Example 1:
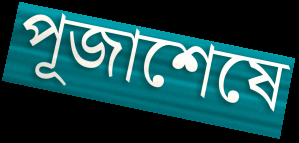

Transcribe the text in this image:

পূজাশেষে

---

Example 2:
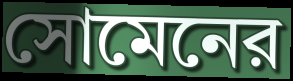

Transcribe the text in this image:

সোমেনের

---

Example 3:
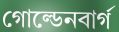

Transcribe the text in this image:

গোল্ডেনবার্গ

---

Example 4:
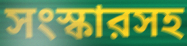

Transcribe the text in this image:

সংস্কারসহ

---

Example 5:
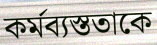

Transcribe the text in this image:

কর্মব্যস্ততাকে